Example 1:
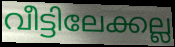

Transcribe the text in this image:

വീട്ടിലേക്കല്ല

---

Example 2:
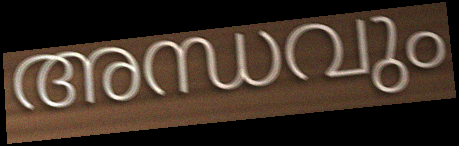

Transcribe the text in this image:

അന്ധവും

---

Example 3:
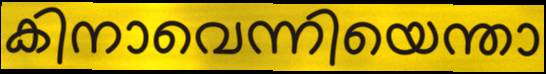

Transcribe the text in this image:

കിനാവെന്നിയെന്താ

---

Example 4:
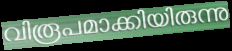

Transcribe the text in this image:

വിരൂപമാക്കിയിരുന്നു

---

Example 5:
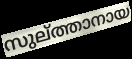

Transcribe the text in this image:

സുല്ത്താനായ